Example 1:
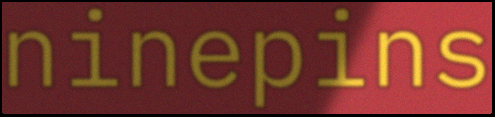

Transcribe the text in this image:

ninepins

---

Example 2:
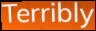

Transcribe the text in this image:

Terribly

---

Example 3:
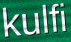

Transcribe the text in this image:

kulfi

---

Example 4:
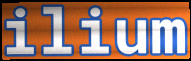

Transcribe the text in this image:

ilium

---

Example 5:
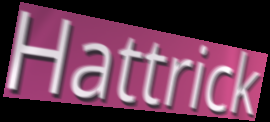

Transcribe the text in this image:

Hattrick